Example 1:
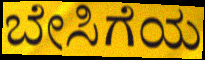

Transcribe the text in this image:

ಬೇಸಿಗೆಯ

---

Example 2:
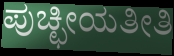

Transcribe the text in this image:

ಪುಚ್ಛೀಯತೀತಿ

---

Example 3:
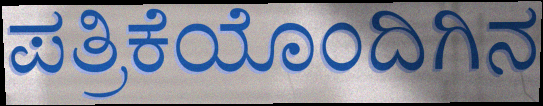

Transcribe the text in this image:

ಪತ್ರಿಕೆಯೊಂದಿಗಿನ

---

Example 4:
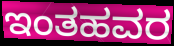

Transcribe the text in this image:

ಇಂತಹವರ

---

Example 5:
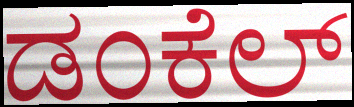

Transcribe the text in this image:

ಡಂಕೆಲ್